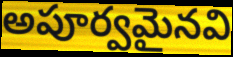
అపూర్వమైనవి